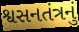
શ્વસનતંત્રનું